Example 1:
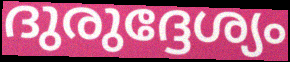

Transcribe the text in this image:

ദുരുദ്ദേശ്യം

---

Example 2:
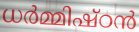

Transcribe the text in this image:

ധർമ്മിഷ്ഠൻ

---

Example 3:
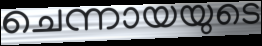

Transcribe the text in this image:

ചെന്നായയുടെ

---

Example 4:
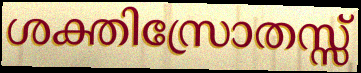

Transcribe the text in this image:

ശക്തിസ്രോതസ്സ്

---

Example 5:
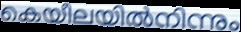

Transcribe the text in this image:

കെയീലയിൽനിന്നും